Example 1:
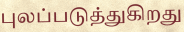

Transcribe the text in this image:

புலப்படுத்துகிறது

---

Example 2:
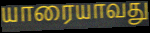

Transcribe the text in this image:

யாரையாவது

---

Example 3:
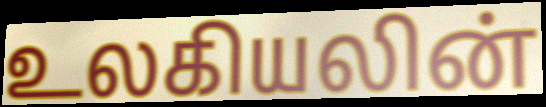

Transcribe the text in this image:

உலகியலின்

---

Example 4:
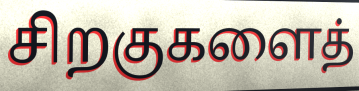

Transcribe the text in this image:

சிறகுகளைத்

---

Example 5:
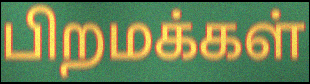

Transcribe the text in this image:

பிறமக்கள்